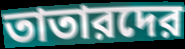
তাতারদের